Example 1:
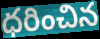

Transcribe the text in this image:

ధరించిన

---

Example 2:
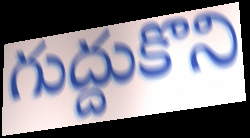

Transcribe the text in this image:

గుద్దుకొని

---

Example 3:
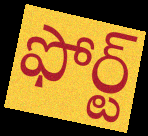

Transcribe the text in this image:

ఫోర్ట్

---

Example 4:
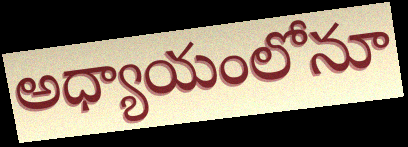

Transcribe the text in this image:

అధ్యాయంలోనూ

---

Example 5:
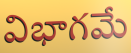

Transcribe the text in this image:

విభాగమే